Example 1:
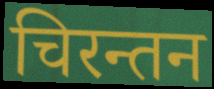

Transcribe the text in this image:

चिरन्तन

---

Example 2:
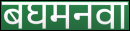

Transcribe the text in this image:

बघमनवा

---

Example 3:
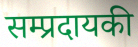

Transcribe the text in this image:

सम्प्रदायकी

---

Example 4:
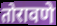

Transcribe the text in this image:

तोरावणे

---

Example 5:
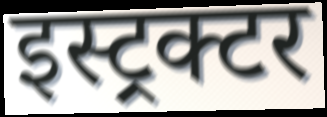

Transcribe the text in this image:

इस्ट्रक्टर